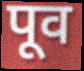
पूव